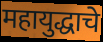
महायुद्धाचे